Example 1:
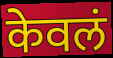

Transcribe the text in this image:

केवलं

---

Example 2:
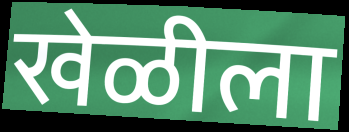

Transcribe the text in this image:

खेळीला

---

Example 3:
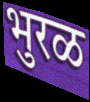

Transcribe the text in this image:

भुरळ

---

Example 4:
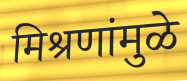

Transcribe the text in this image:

मिश्रणांमुळे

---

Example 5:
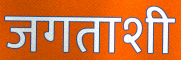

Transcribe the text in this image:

जगताशी